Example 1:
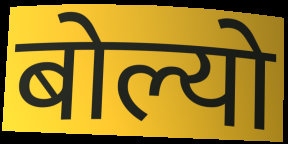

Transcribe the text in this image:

बोल्यो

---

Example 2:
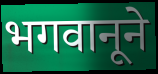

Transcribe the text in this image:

भगवानूने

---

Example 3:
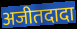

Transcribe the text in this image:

अजीतदादा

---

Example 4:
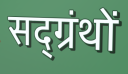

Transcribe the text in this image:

सद्ग्रंथों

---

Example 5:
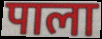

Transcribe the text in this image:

पाला